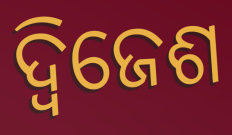
ଦ୍ୱିଜେଶ